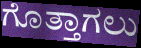
ಗೊತ್ತಾಗಲು